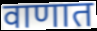
वाणात